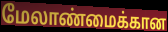
மேலாண்மைக்கான